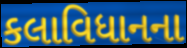
કલાવિધાનના